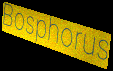
Bosphorus